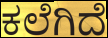
ಕಲೆಗಿದೆ